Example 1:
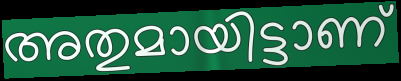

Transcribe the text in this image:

അതുമായിട്ടാണ്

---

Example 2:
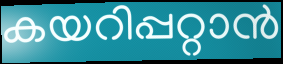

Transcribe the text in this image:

കയറിപ്പറ്റാൻ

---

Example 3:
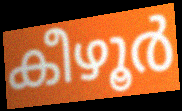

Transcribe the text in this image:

കീഴൂർ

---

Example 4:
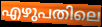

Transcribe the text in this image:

എഴുപതിലെ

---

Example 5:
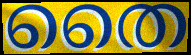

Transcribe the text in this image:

തൈ